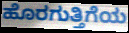
ಹೊರಗುತ್ತಿಗೆಯ